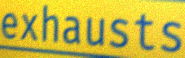
exhausts